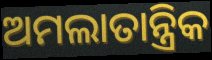
ଅମଲାତାନ୍ତ୍ରିକ